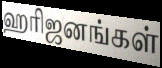
ஹரிஜனங்கள்